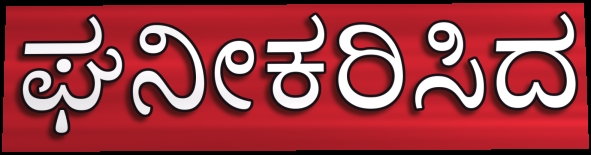
ಘನೀಕರಿಸಿದ